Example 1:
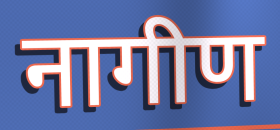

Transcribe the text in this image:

नागीण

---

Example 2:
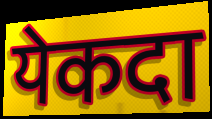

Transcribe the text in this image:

येकदा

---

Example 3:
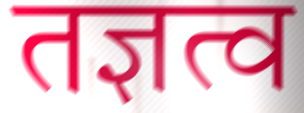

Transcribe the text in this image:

तज्ञत्व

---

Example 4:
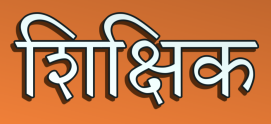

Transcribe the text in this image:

शिक्षिक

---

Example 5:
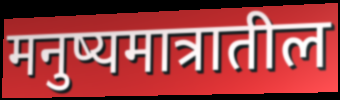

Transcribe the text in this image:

मनुष्यमात्रातील